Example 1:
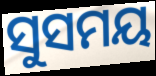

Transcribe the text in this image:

ସୁସମୟ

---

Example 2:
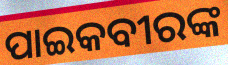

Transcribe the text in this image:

ପାଇକବୀରଙ୍କ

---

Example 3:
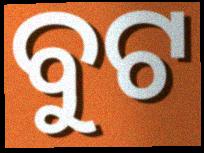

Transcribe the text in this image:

ବୁଟ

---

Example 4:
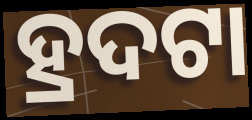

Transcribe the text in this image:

ହ୍ରଦଟା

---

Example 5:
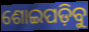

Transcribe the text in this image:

ଶୋଇପଡ଼ିବୁ